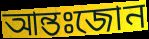
আন্তঃজোন